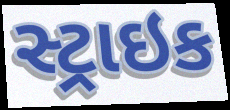
સ્ટ્રાઇક